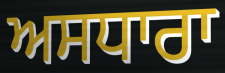
ਅਸਧਾਰਾ